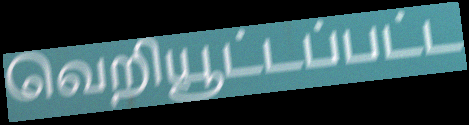
வெறியூட்டப்பட்ட